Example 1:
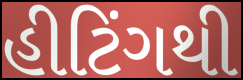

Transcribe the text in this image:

હીટિંગથી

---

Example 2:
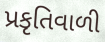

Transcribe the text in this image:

પ્રકૃતિવાળી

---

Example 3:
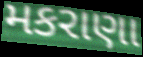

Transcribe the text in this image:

મકરાણા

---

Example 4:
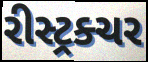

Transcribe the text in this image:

રીસ્ટ્રક્ચર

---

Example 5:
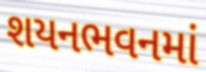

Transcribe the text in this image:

શયનભવનમાં